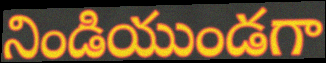
నిండియుండగా